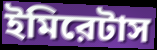
ইমিরেটাস